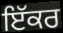
ਇੱਕਰ